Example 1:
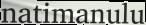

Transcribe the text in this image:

natimanulu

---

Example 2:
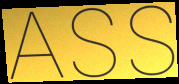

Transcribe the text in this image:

ASS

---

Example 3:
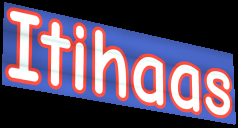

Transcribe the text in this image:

Itihaas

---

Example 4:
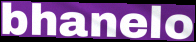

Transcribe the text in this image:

bhanelo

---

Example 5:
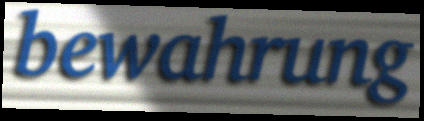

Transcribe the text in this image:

bewahrung